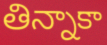
తిన్నాకా